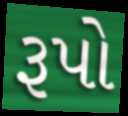
રૂપો